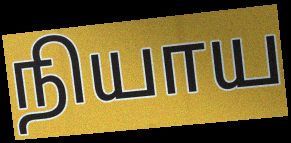
நியாய